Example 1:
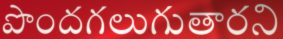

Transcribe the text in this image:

పొందగలుగుతారని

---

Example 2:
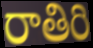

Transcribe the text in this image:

రాతిరి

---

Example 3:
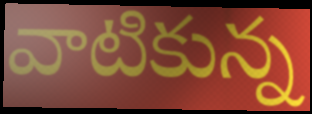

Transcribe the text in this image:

వాటికున్న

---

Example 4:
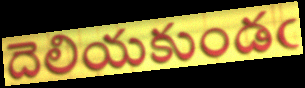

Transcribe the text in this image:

దెలియకుండఁ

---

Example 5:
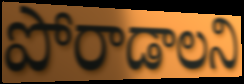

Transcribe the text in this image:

పోరాడాలని